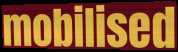
mobilised